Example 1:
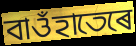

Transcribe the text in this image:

বাওঁহাতেৰে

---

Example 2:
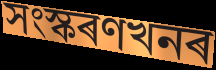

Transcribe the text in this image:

সংস্কৰণখনৰ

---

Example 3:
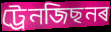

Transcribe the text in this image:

ট্ৰেনজিছনৰ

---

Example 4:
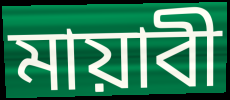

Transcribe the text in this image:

মায়াবী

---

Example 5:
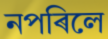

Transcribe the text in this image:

নপৰিলে